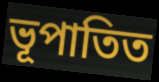
ভূপাতিত